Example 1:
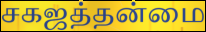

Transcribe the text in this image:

சகஜத்தன்மை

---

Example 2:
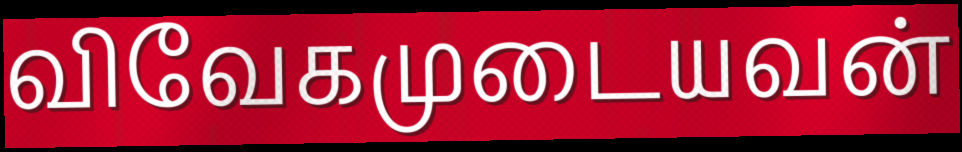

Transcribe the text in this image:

விவேகமுடையவன்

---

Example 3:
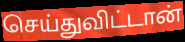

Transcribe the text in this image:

செய்துவிட்டான்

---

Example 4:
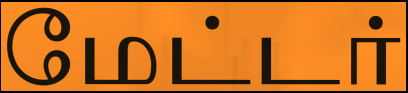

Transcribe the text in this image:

மேட்டர்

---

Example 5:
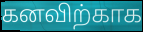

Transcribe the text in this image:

கனவிற்காக